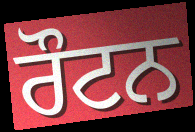
ਰੌਟਨ